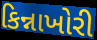
કિન્નાખોરી